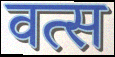
वत्स